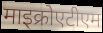
माइक्रोएटीएम